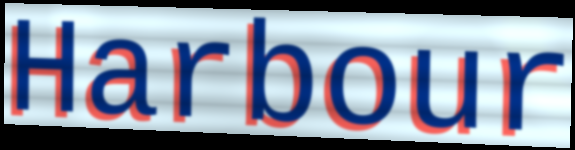
Harbour